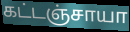
கட்டஞ்சாயா